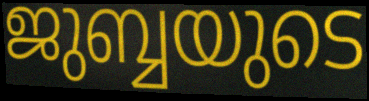
ജുബ്ബയുടെ